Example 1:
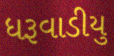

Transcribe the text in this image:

ધરૂવાડીયુ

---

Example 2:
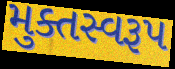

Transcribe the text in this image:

મુક્તસ્વરૂપ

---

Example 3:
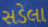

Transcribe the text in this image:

સડેલા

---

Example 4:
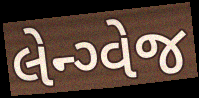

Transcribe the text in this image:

લેન્ગ્વેજ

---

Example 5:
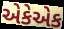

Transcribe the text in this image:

એકેએક